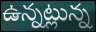
ఉన్నట్లున్న